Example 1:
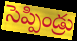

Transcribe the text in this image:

సెప్పిండ్రు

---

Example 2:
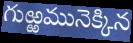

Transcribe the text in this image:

గుఱ్ఱమునెక్కిన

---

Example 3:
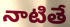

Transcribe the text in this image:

నాటితే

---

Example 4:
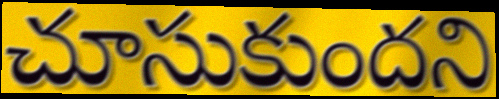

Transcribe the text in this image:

చూసుకుందని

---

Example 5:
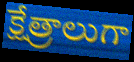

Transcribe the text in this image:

క్షేత్రాలుగా